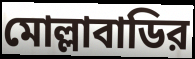
মোল্লাবাডির